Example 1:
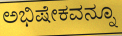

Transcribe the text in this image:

ಅಭಿಷೇಕವನ್ನೂ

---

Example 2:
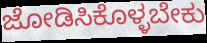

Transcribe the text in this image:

ಜೋಡಿಸಿಕೊಳ್ಳಬೇಕು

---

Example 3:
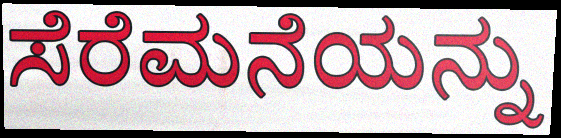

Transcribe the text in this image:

ಸೆರೆಮನೆಯನ್ನು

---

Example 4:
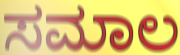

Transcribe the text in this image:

ಸಮಾಲ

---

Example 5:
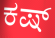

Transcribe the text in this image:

ಕಷ್